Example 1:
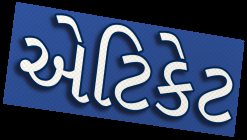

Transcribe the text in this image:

એટિકેટ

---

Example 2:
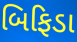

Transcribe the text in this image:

બિફિડા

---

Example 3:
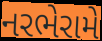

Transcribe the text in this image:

નરભેરામે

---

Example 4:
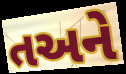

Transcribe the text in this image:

તઅને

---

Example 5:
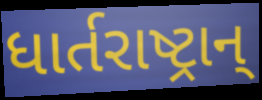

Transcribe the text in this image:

ધાર્તરાષ્ટ્રાન્